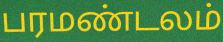
பரமண்டலம்